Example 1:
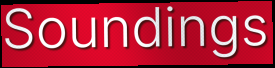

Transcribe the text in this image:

Soundings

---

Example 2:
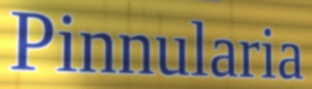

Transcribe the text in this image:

Pinnularia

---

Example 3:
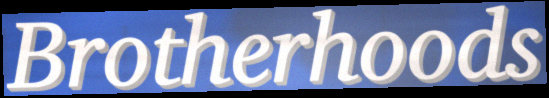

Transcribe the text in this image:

Brotherhoods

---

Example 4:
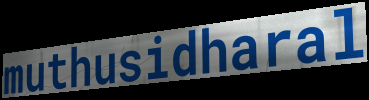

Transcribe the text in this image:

muthusidharal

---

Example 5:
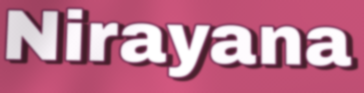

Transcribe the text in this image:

Nirayana